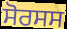
ਸੋਰਸਸ